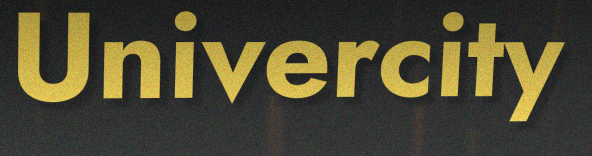
Univercity